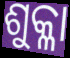
ଶୁକ୍ଳା